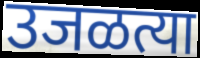
उजळत्या